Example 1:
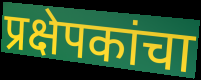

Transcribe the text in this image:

प्रक्षेपकांचा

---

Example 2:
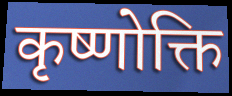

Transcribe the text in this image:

कृष्णोक्ति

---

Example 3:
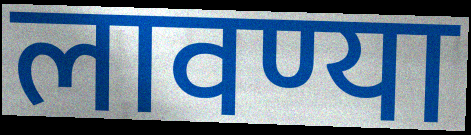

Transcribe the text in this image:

लावण्या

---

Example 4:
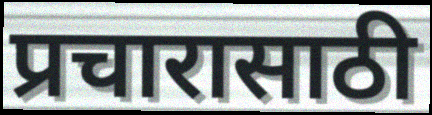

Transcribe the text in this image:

प्रचारासाठी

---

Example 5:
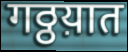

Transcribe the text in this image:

गठ्ठय़ात